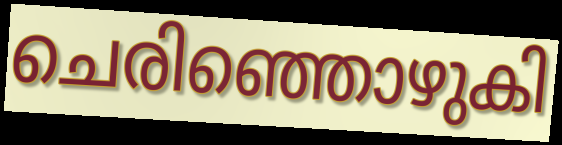
ചെരിഞ്ഞൊഴുകി